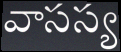
వాసస్య